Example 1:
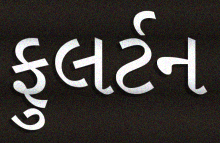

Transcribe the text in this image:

ફુલર્ટન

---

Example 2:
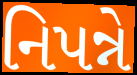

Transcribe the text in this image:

નિપન્ને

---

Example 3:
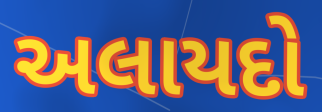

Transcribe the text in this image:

અલાયદો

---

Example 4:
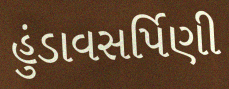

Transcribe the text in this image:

હુંડાવસર્પિણી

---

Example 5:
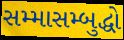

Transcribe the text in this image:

સમ્માસમ્બુદ્ધો